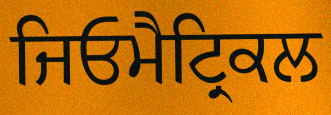
ਜਿਓਮੈਟ੍ਰਿਕਲ